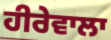
ਹੀਰੇਵਾਲਾ